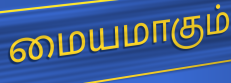
மையமாகும்